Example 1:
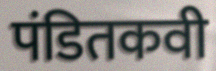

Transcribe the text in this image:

पंडितकवी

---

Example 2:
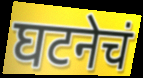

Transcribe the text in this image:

घटनेचं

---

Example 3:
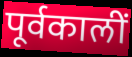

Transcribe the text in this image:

पूर्वकालीं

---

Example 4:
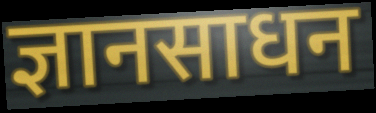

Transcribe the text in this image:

ज्ञानसाधन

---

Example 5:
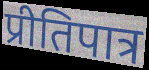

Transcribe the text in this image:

प्रीतिपात्र